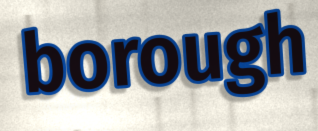
borough